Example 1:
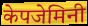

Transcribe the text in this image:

केपजेमिनी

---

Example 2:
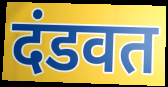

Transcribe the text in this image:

दंडवत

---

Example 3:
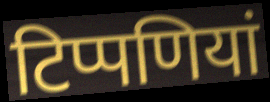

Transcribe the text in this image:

टिप्‍पणियां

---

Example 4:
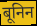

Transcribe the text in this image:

बूनिन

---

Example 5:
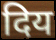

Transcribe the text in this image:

दिय